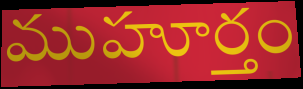
ముహూర్తం